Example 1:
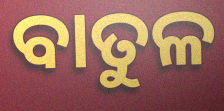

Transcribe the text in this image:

ବାତୁଳ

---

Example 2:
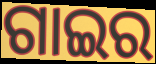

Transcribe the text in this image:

ଗାଇର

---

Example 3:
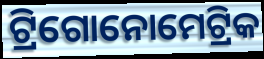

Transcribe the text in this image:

ଟ୍ରିଗୋନୋମେଟ୍ରିକ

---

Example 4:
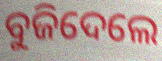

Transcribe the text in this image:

ବୁଜିଦେଲେ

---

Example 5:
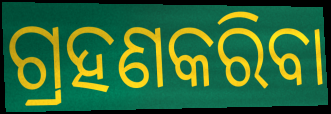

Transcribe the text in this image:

ଗ୍ରହଣକରିବା